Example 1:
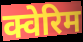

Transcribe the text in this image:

क्वेरिम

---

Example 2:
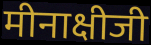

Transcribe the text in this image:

मीनाक्षीजी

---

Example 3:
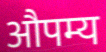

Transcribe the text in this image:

औपम्य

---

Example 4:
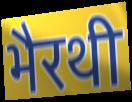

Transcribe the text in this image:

भैरथी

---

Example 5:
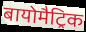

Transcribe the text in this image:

बायोमैट्रिक